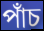
পাঁচ